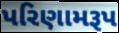
પરિણામરૂપ